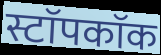
स्टॉपकॉक